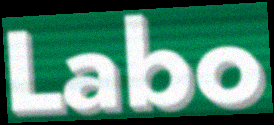
Labo